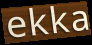
ekka